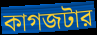
কাগজটার